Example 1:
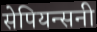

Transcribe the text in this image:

सेपियन्सनी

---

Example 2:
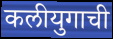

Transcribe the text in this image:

कलीयुगाची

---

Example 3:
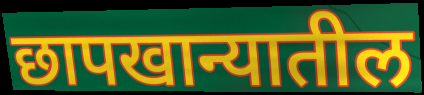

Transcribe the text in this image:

छापखान्यातील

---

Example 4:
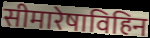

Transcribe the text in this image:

सीमारेषाविहिन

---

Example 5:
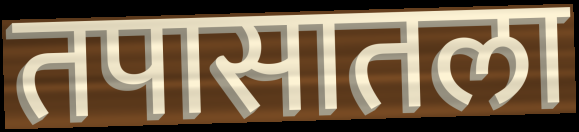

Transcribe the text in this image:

तपासातला